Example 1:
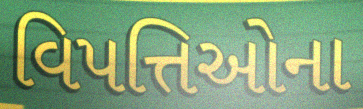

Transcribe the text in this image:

વિપત્તિઓના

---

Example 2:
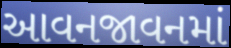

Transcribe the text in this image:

આવનજાવનમાં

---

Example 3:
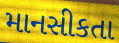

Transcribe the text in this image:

માનસીકતા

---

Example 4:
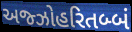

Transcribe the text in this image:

અજ્ઝોહરિતબ્બં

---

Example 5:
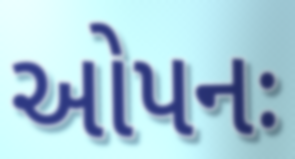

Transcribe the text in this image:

ઓપનઃ